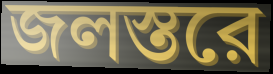
জলস্তরে